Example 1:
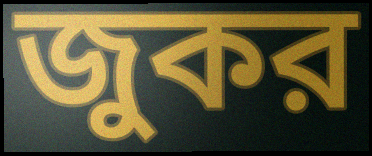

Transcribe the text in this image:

জুকর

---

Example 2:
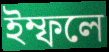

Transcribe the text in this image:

ইম্ফলে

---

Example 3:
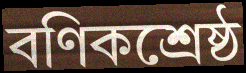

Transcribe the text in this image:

বণিকশ্রেষ্ঠ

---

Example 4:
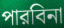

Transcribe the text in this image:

পারবিনা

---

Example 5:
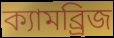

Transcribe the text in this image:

ক্যামব্র্রিজ